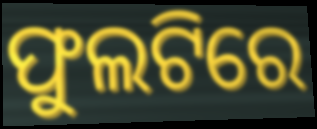
ଫୁଲଟିରେ